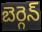
బెర్గెన్